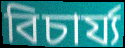
বিচাৰ্য্য